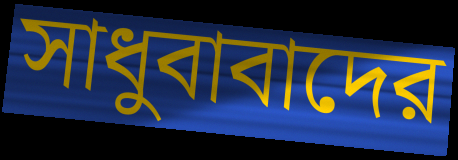
সাধুবাবাদের